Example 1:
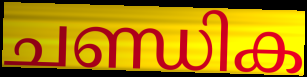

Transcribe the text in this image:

ചണ്ഡിക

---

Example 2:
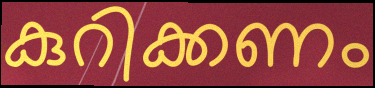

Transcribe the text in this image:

കുറിക്കണം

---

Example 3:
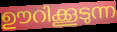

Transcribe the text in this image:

ഊറിക്കൂടുന്ന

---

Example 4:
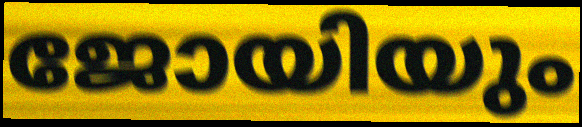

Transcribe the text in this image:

ജോയിയും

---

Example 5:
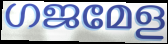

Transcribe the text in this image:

ഗജമേള